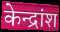
केन्द्रांश